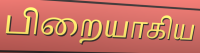
பிறையாகிய